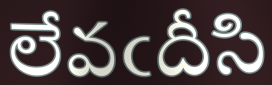
లేవఁదీసి